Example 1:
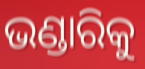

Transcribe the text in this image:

ଭଣ୍ଡାରିକୁ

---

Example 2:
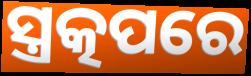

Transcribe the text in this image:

ସ୍ତ୍ରତ୍କପରେ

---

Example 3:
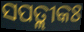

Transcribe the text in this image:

ସପତ୍ଲୀକଃ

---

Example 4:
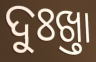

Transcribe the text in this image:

ଦୁଃଖ୍ତା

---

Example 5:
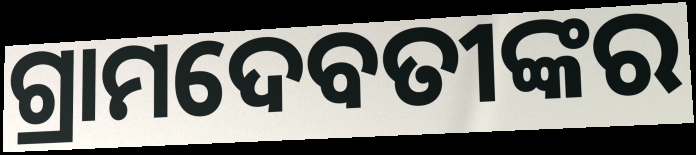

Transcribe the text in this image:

ଗ୍ରାମଦେବତୀଙ୍କର